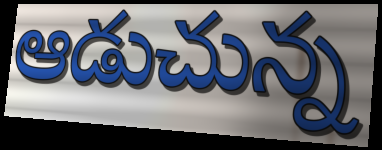
ఆడుచున్న